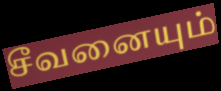
சீவனையும்